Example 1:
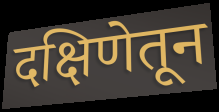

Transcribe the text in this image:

दक्षिणेतून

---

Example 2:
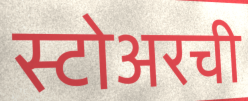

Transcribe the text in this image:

स्टोअरची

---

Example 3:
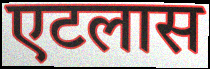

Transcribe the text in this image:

एटलास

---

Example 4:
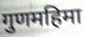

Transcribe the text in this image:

गुणमहिमा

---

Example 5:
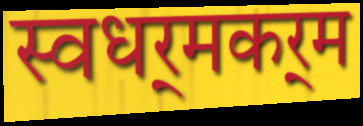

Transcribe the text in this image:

स्वधर्मकर्म